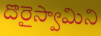
దొరైస్వామిని